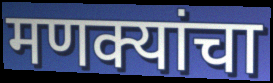
मणक्यांचा